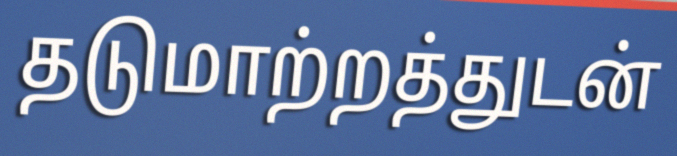
தடுமாற்றத்துடன்